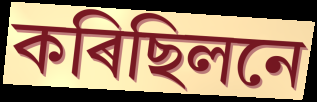
কৰিছিলনে